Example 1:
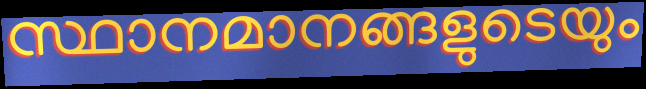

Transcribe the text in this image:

സ്ഥാനമാനങ്ങളുടെയും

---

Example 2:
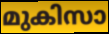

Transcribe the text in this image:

മുകിസാ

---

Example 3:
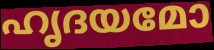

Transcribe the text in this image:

ഹൃദയമോ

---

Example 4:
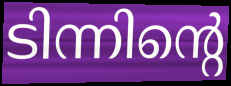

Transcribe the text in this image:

ടിന്നിന്റെ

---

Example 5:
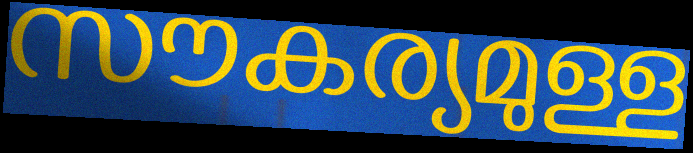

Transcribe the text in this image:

സൗകര്യമുള്ള